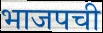
भाजपची